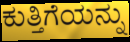
ಕುತ್ತಿಗೆಯನ್ನು